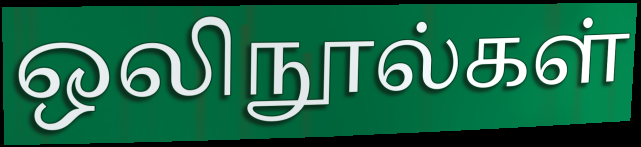
ஒலிநூல்கள்